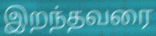
இறந்தவரை